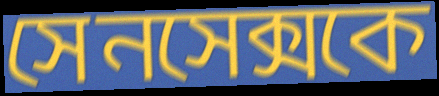
সেনসেক্সকে